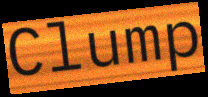
Clump